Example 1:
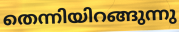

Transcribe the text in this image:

തെന്നിയിറങ്ങുന്നു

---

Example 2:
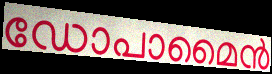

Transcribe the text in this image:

ഡോപാമൈൻ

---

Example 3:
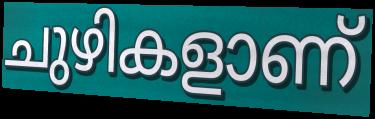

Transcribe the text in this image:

ചുഴികളാണ്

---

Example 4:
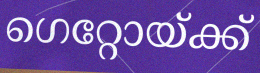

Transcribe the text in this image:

ഗെറ്റോയ്ക്ക്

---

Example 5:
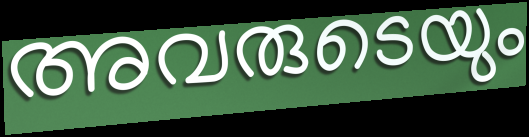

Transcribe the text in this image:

അവരുടെയും